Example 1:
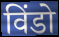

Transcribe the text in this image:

विंडो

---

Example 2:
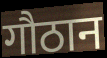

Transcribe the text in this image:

गौठान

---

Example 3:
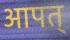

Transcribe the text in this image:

आपत्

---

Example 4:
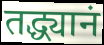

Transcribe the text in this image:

तद्ध्यानं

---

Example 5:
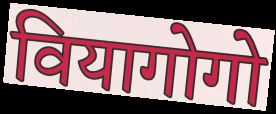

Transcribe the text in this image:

वियागोगो